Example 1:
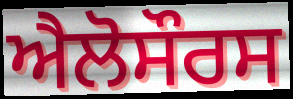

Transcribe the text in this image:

ਐਲੋਸੌਰਸ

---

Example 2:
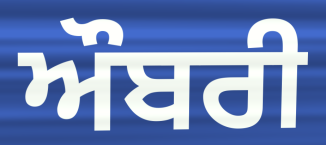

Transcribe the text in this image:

ਔਬਰੀ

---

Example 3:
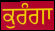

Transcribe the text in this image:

ਕੁਰੰਗਾ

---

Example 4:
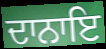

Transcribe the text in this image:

ਦਾਨਾਇ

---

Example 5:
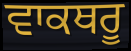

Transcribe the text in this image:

ਵਾਕਥਰੂ